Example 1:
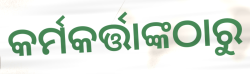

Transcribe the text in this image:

କର୍ମକର୍ତ୍ତାଙ୍କଠାରୁ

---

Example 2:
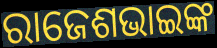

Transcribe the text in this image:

ରାଜେଶଭାଇଙ୍କ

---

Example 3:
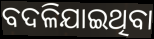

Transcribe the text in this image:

ବଦଳିଯାଇଥିବା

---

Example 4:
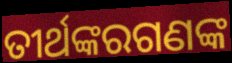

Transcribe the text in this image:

ତୀର୍ଥଙ୍କରଗଣଙ୍କ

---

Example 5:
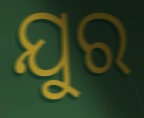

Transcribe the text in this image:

ଯୁର